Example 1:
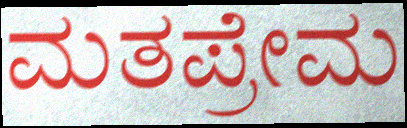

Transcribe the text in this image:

ಮತಪ್ರೇಮ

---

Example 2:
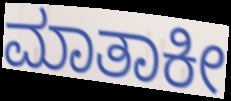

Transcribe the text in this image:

ಮಾತಾಕೀ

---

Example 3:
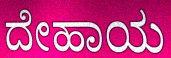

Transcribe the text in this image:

ದೇಹಾಯ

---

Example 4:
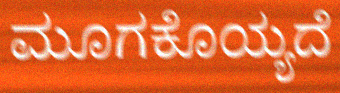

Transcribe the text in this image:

ಮೂಗಕೊಯ್ಯದೆ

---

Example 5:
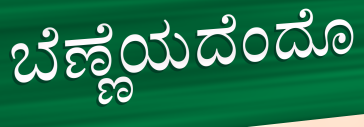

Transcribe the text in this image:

ಬೆಣ್ಣೆಯದೆಂದೊ